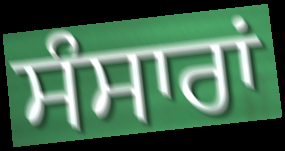
ਸੰਸਾਰਾਂ